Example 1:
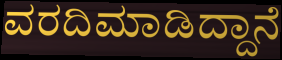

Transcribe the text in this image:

ವರದಿಮಾಡಿದ್ದಾನೆ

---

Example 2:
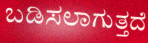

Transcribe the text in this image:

ಬಡಿಸಲಾಗುತ್ತದೆ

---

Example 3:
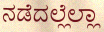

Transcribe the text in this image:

ನಡೆದಲ್ಲೆಲ್ಲಾ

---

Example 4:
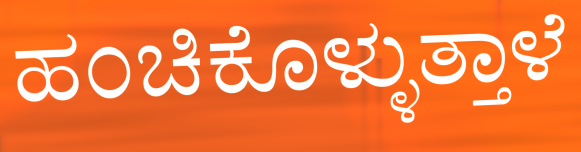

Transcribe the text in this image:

ಹಂಚಿಕೊಳ್ಳುತ್ತಾಳೆ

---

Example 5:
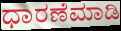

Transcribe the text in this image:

ಧಾರಣೆಮಾಡಿ